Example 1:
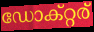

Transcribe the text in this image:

ഡോക്റ്റര്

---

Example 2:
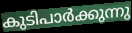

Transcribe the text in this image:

കുടിപാർക്കുന്നു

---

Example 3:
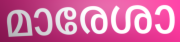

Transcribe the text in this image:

മാരേശാ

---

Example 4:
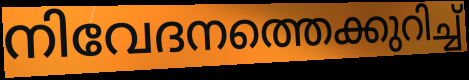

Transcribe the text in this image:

നിവേദനത്തെക്കുറിച്ച്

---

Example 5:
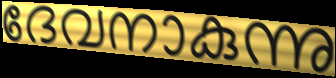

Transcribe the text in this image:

ദേവനാകുന്നു